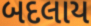
બદલાય